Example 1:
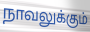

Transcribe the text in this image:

நாவலுக்கும்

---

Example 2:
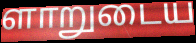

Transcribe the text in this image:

ளாறுடைய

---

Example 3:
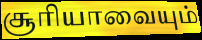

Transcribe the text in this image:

சூரியாவையும்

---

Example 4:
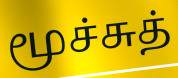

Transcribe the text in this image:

மூச்சுத்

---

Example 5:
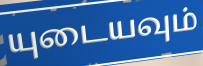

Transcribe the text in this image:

யுடையவும்